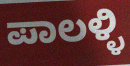
ಪಾಲಳ್ಳಿ